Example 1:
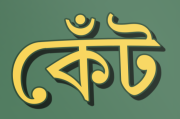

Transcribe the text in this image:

কেঁট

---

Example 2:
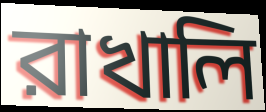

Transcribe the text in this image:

রাখালি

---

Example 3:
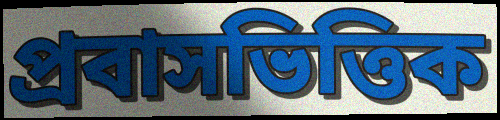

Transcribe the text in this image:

প্রবাসভিত্তিক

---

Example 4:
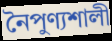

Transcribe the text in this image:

নৈপুণ্যশালী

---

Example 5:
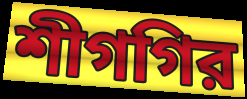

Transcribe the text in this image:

শীগগির